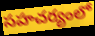
సహచర్యంలో